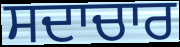
ਸਦਾਚਾਰ